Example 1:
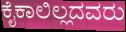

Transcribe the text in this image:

ಕೈಕಾಲಿಲ್ಲದವರು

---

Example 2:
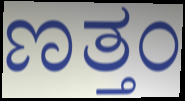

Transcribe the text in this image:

ಣತ್ತಂ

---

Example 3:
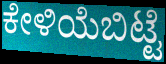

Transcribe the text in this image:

ಕೇಳಿಯೆಬಿಟ್ಟೆ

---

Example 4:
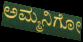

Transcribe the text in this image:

ಅಮ್ಮನಿಗೋ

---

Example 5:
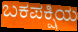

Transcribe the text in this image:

ಬಕಪಕ್ಷಿಯ